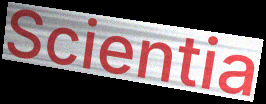
Scientia